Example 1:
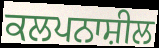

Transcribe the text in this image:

ਕਲਪਨਾਸ਼ੀਲ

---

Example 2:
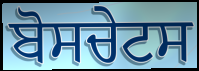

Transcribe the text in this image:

ਬੋਸਚੇਟਸ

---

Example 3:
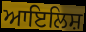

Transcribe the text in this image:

ਆਇਲਿਸ਼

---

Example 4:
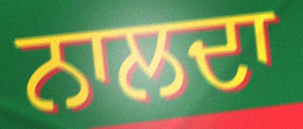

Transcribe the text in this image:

ਨਾਲਦਾ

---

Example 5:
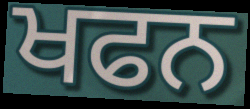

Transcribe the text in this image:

ਖਫਨ